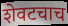
शेवटचाच